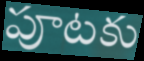
పూటకు